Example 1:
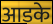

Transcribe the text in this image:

आडके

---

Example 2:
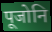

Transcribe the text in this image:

पूजोनि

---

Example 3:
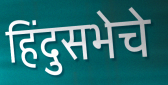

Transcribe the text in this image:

हिंदुसभेचे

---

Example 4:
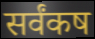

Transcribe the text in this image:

सर्वंकष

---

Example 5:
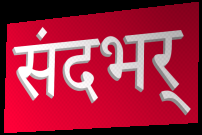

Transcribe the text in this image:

संदभर्